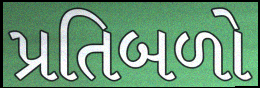
પ્રતિબળો